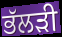
ਭੱਲੜੀ